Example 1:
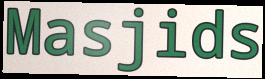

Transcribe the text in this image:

Masjids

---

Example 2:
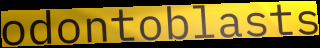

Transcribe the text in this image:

odontoblasts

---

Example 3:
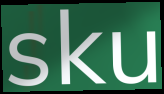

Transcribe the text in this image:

sku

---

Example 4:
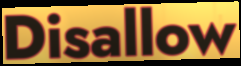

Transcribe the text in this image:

Disallow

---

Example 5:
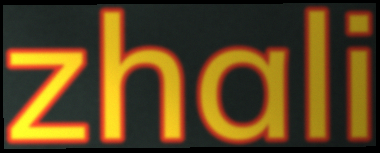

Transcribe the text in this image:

zhali